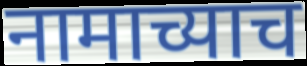
नामाच्याच